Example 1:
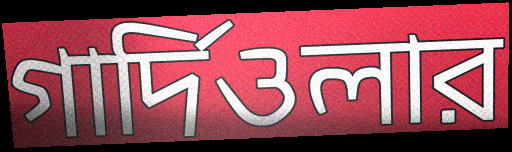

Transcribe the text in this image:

গার্দিওলার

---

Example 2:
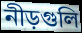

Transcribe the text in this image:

নীড়গুলি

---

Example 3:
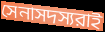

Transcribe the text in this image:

সেনাসদস্যরাই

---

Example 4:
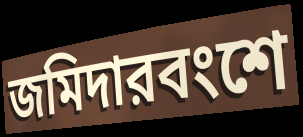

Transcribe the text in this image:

জমিদারবংশে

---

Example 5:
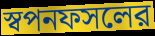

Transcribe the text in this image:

স্বপনফসলের